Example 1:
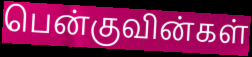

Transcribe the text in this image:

பென்குவின்கள்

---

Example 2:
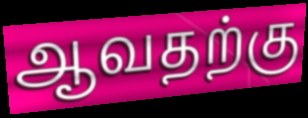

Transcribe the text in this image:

ஆவதற்கு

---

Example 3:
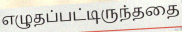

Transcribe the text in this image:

எழுதப்பட்டிருந்ததை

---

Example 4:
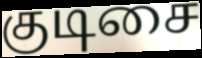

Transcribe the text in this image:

குடிசை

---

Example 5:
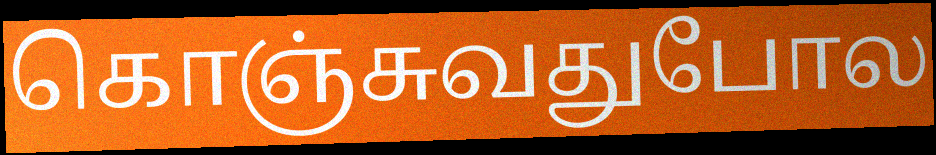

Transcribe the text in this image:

கொஞ்சுவதுபோல